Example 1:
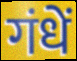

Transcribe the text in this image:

गंधें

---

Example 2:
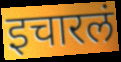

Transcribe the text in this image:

इचारलं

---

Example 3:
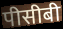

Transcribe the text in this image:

पीसीबी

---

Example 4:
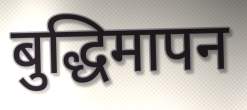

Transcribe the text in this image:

बुद्धिमापन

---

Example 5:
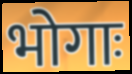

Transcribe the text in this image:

भोगाः